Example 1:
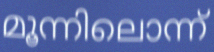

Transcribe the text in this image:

മൂന്നിലൊന്ന്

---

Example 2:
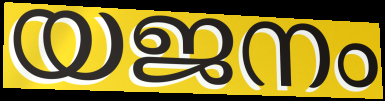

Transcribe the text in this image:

യജനം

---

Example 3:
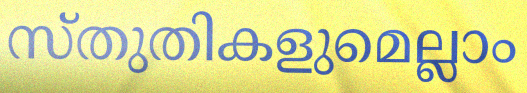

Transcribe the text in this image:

സ്തുതികളുമെല്ലാം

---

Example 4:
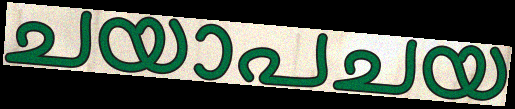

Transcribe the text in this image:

ചയാപചയ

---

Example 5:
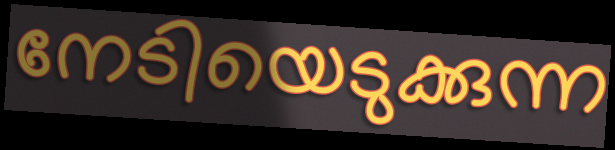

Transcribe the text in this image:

നേടിയെടുക്കുന്ന